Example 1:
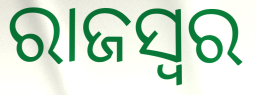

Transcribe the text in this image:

ରାଜସ୍ୱର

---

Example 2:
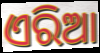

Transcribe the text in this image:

ଏରିଆ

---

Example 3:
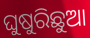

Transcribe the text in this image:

ଘୁଷୁରିଛୁଆ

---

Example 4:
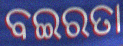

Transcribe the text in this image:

ବଇରତା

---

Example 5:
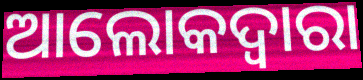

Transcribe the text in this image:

ଆଲୋକଦ୍ୱାରା